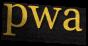
pwa